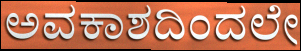
ಅವಕಾಶದಿಂದಲೇ